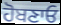
ਹੋਬਣਾਓ